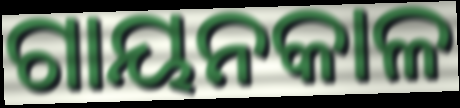
ଗାୟନକାଳ